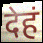
देहं